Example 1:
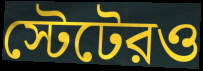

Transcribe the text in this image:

স্টেটেরও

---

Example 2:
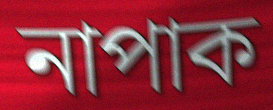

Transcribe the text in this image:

নাপাক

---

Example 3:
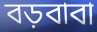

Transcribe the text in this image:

বড়বাবা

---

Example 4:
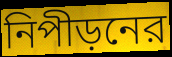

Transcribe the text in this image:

নিপীড়নের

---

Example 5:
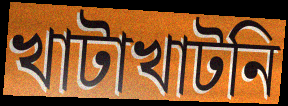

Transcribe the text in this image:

খাটাখাটনি